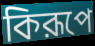
কিরূপে